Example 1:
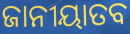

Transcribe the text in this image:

ଜାନୀୟାତବ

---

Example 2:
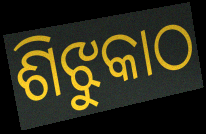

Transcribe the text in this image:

ଶିଝୁକାଠ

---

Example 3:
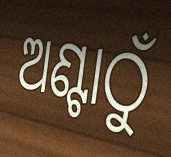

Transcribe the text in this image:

ଅଣ୍ଟାଠୁଁ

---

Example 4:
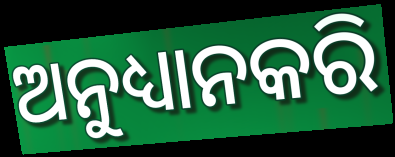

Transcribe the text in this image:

ଅନୁଧ୍ୟାନକରି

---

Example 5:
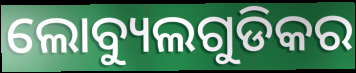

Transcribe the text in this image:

ଲୋବ୍ୟୁଲଗୁଡିକର